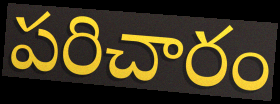
పరిచారం